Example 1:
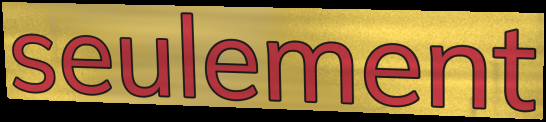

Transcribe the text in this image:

seulement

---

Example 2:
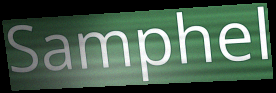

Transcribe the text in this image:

Samphel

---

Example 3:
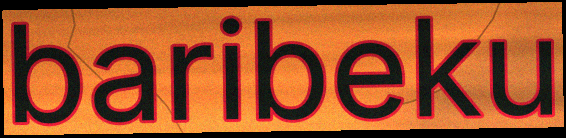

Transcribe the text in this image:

baribeku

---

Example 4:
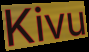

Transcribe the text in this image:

Kivu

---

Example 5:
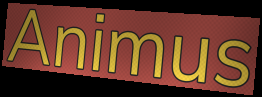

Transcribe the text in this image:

Animus